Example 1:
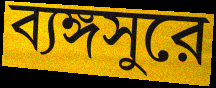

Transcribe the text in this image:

ব্যঙ্গসুরে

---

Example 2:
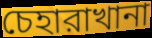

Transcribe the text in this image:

চেহারাখানা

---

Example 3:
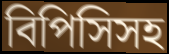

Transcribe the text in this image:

বিপিসিসহ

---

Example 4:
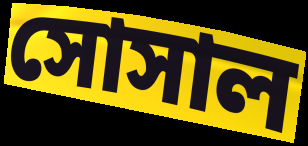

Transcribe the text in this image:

সোসাল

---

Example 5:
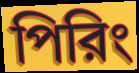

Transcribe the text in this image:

পিরিং